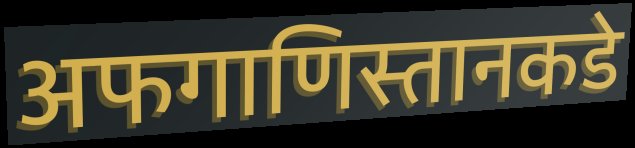
अफगाणिस्तानकडे